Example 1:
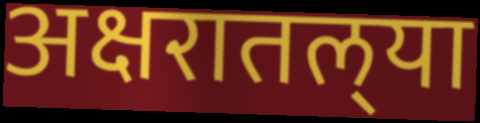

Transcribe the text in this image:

अक्षरातल्या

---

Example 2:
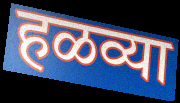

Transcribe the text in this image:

हळव्या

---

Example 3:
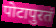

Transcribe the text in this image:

पोटापुरतं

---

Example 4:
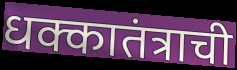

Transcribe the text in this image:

धक्कातंत्राची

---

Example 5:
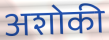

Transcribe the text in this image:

अशोकी